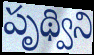
పృథ్విని